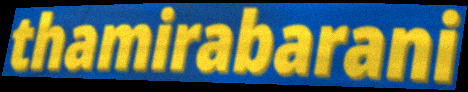
thamirabarani